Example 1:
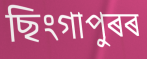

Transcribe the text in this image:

ছিংগাপুৰৰ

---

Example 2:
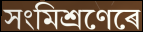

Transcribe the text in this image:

সংমিশ্ৰণেৰে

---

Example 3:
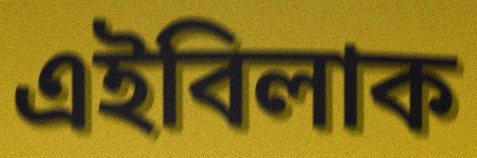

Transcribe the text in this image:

এইবিলাক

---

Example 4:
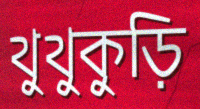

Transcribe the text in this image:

থুথুকুড়ি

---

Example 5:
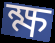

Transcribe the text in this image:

ক্ষ